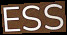
ESS